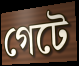
গেটে